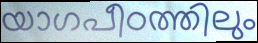
യാഗപീഠത്തിലും